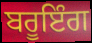
ਬਰੂਇੰਗ